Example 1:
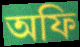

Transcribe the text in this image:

অফি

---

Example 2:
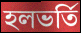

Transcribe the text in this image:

হলভর্তি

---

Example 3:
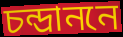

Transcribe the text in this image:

চন্দ্রাননে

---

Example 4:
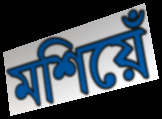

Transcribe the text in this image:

মশিয়েঁ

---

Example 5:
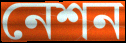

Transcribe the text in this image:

নেশন